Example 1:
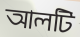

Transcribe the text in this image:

আলটি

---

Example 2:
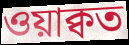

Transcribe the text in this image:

ওয়াক্বত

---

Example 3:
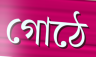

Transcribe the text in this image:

গোঠে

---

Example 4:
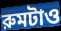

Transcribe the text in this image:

রুমটাও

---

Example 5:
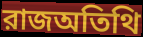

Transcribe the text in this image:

রাজঅতিথি